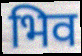
भिव